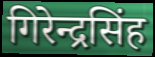
गिरेन्द्रसिंह